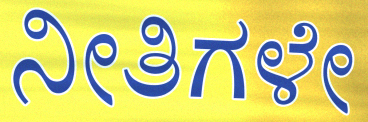
ನೀತಿಗಳೇ